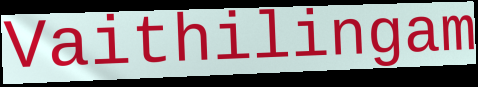
Vaithilingam